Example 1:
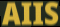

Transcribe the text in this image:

AIIS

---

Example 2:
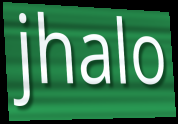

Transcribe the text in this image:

jhalo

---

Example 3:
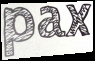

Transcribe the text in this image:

pax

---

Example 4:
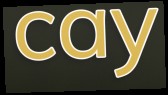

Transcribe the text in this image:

cay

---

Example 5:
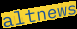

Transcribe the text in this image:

altnews